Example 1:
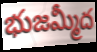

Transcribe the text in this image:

భుజమ్మీద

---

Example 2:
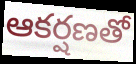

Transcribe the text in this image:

ఆకర్షణతో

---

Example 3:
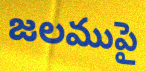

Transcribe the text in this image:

జలముపై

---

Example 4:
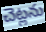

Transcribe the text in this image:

చెట్లను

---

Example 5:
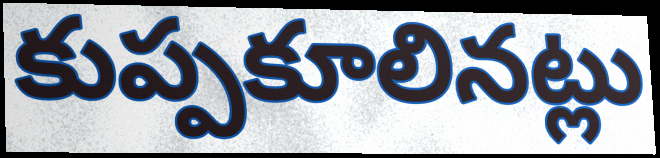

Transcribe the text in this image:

కుప్పకూలినట్లు